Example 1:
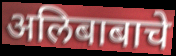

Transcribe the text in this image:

अलिबाबाचे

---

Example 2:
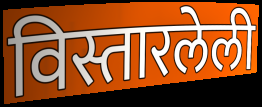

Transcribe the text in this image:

विस्तारलेली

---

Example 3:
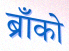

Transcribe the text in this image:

ब्राँको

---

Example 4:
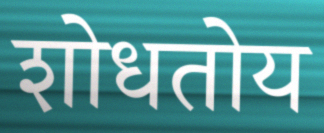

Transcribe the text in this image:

शोधतोय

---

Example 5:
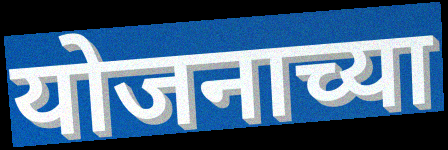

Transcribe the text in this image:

योजनाच्या